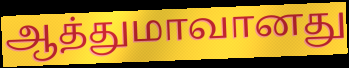
ஆத்துமாவானது